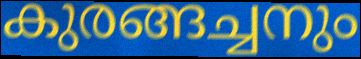
കുരങ്ങച്ചനും